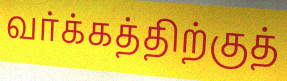
வர்க்கத்திற்குத்